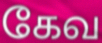
கேவ